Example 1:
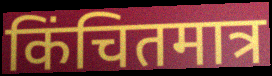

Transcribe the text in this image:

किंचितमात्र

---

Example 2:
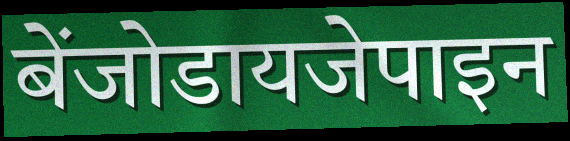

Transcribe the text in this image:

बेंजोडायजेपाइन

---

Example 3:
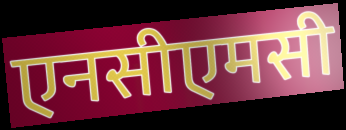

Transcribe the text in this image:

एनसीएमसी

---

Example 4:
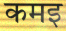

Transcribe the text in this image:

कमइ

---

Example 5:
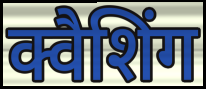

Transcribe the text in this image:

क्वैशिंग